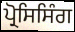
ਪ੍ਰੋਸਿਸਿੰਗ